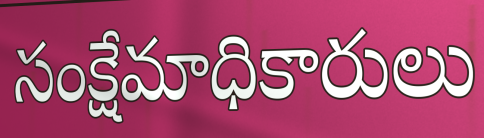
సంక్షేమాధికారులు